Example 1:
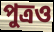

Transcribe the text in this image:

পুত্রও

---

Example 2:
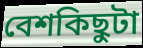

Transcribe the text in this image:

বেশকিছুটা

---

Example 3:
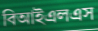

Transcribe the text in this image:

বিআইএলএস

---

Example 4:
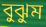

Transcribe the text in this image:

বুঝুম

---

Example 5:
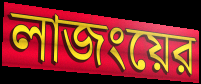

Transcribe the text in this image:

লাজংয়ের